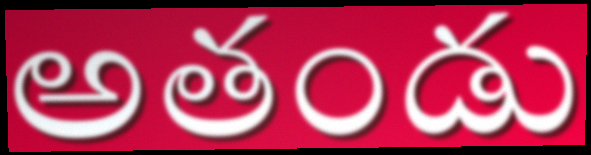
అతండు